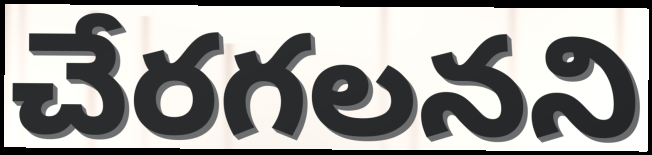
చేరగలనని